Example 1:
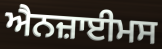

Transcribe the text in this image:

ਐਨਜ਼ਾਈਮਸ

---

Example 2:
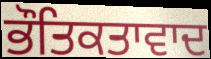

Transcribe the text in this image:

ਭੌਤਿਕਤਾਵਾਦ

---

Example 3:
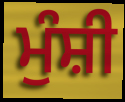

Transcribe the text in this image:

ਮੁੰਸ਼ੀ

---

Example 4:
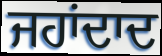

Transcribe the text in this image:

ਜਹਾਂਦਾਦ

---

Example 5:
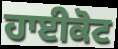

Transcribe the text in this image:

ਹਾਈਕੋਟ